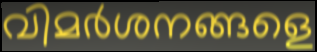
വിമർശനങ്ങളെ